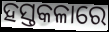
ହସ୍ତକଳାରେ